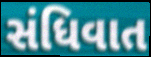
સંધિવાત